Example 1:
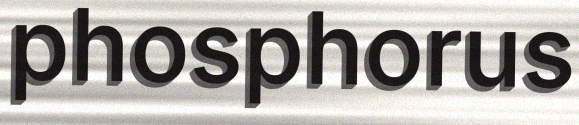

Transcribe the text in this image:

phosphorus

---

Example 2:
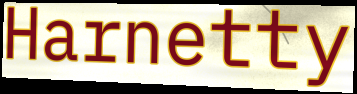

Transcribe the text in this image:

Harnetty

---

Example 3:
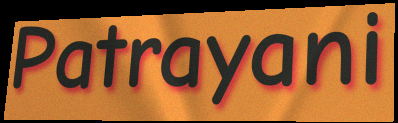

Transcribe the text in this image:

Patrayani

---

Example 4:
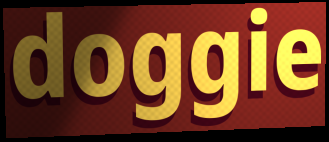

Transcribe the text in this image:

doggie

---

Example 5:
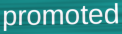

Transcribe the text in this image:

promoted